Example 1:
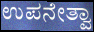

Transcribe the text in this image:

ಉಪನೇತ್ವಾ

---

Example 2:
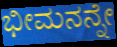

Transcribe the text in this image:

ಭೀಮನನ್ನೇ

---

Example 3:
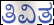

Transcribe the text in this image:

ತಿವಿತ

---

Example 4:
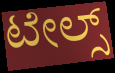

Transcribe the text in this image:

ಟೇಲ್ಸ್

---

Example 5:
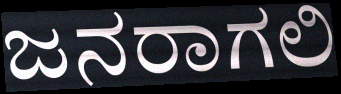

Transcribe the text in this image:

ಜನರಾಗಲಿ